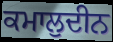
ਕਮਾਲੁਦੀਨ